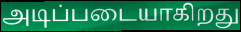
அடிப்படையாகிறது